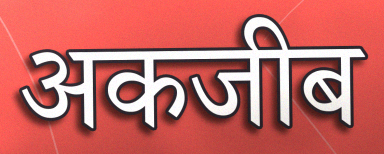
अकजीब